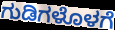
ಗುಡಿಗಳೊಳಗೆ